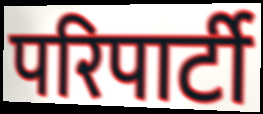
परिपार्टी